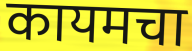
कायमचा